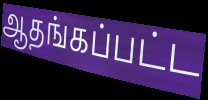
ஆதங்கப்பட்ட